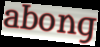
abong